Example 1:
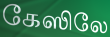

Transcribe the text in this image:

கேஸிலே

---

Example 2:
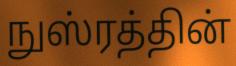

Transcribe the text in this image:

நுஸ்ரத்தின்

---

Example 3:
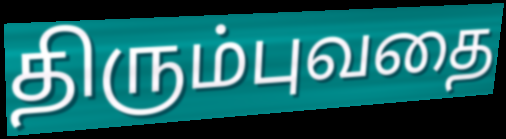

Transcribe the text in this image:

திரும்புவதை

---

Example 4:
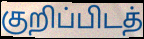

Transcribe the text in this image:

குறிப்பிடத்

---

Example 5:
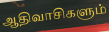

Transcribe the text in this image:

ஆதிவாசிகளும்